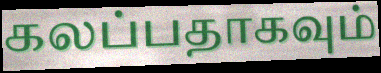
கலப்பதாகவும்